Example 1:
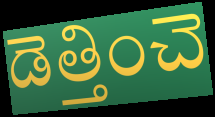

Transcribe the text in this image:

డెత్తించె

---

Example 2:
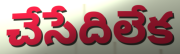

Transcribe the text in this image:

చేసేదిలేక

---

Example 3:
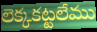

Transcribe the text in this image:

లెక్కకట్టలేము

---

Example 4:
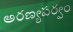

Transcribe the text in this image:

అరణ్యపర్వం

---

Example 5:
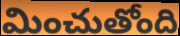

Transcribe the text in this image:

మించుతోంది